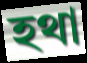
হথা